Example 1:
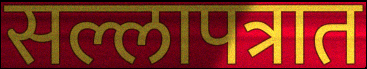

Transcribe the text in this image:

सल्लापत्रात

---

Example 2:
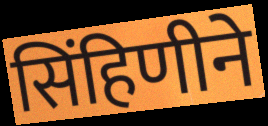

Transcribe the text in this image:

सिंहिणीने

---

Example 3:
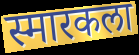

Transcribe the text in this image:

स्मारकला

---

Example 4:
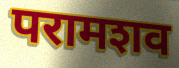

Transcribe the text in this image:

परामशव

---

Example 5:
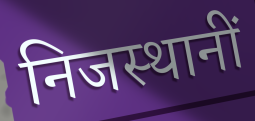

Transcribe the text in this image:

निजस्थानीं